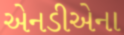
એનડીએના